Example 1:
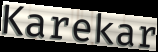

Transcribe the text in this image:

Karekar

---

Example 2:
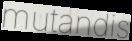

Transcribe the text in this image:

mutandis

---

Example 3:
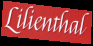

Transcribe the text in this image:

Lilienthal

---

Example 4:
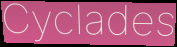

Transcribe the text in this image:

Cyclades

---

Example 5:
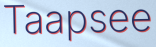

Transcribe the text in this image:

Taapsee